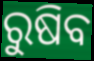
ରୁଷିବ